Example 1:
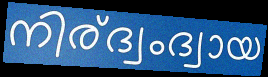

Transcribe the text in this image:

നിര്ദ്വംദ്വായ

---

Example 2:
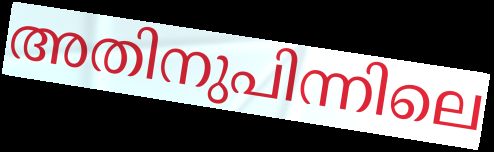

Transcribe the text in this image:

അതിനുപിന്നിലെ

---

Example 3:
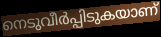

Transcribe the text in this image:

നെടുവീർപ്പിടുകയാണ്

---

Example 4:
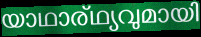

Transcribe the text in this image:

യാഥാര്ഥ്യവുമായി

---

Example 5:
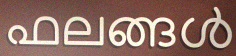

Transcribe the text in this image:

ഫലങ്ങൾ